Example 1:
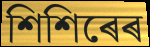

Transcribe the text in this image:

শিশিৰেৰ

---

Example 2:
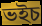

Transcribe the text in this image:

ভইচ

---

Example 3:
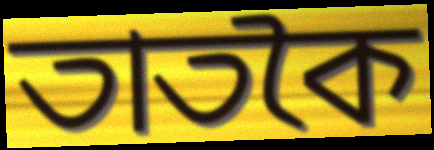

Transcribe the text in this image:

তাতকৈ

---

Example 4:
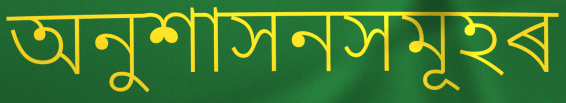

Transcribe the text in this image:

অনুশাসনসমূহৰ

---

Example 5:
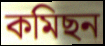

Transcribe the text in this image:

কমিছন